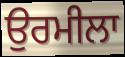
ਉਰਮੀਲਾ